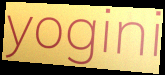
yogini